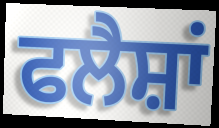
ਫਲੈਸ਼ਾਂ